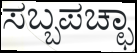
ಸಬ್ಬಪಚ್ಛಾ